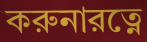
করুনারত্নে